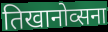
तिखानोव्सना